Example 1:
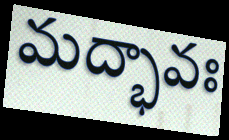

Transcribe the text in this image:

మద్భావః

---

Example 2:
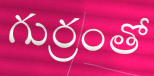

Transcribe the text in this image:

గుర్రంతో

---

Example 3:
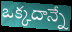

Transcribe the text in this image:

ఒక్కదాన్నే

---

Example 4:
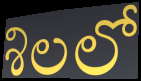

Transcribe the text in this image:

శిలలో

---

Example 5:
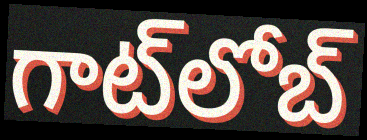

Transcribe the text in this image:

గాట్‍లోబ్